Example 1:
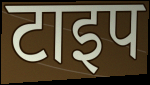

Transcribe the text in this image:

टाइप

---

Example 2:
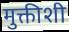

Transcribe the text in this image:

मुक्तीशी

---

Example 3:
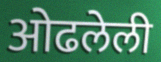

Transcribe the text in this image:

ओढलेली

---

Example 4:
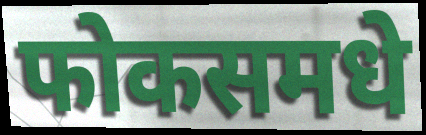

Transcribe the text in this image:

फोकसमधे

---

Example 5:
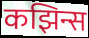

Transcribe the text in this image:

कझिन्स